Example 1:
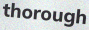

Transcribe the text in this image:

thorough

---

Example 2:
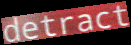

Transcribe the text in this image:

detract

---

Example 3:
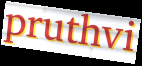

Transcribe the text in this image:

pruthvi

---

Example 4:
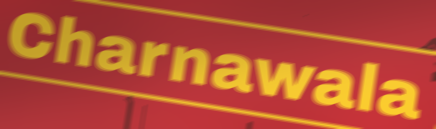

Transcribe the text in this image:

Charnawala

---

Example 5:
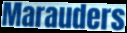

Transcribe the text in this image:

Marauders